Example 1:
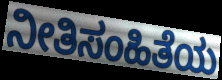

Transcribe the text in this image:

ನೀತಿಸಂಹಿತೆಯ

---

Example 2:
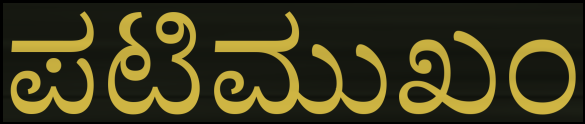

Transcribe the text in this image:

ಪಟಿಮುಖಂ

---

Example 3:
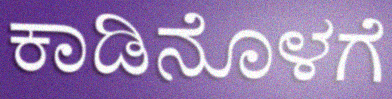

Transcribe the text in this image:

ಕಾಡಿನೊಳಗೆ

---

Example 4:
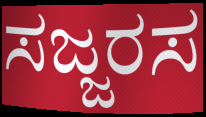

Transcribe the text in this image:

ಸಜ್ಜರಸ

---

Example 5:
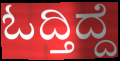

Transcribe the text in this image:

ಓದ್ತಿದ್ದೆ